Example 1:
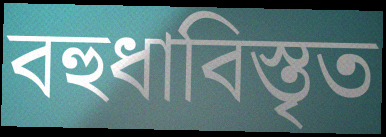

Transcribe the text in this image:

বহুধাবিস্তৃত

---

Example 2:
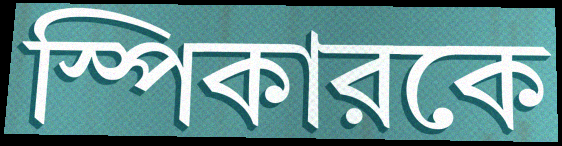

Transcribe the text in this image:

স্পিকারকে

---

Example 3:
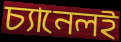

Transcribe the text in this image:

চ্যানেলই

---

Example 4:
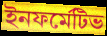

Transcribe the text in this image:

ইনফর্মেটিভ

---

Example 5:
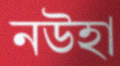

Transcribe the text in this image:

নউহা